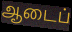
ஆடைப்